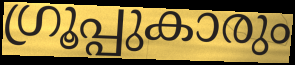
ഗ്രൂപ്പുകാരും